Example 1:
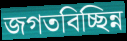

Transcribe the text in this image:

জগতবিচ্ছিন্ন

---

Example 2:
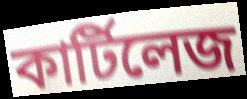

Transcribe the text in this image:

কার্টিলেজ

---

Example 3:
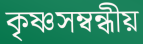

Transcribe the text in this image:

কৃষ্ণসম্বন্ধীয়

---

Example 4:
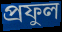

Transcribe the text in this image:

প্রফুল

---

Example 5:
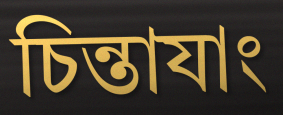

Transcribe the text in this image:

চিন্তাযাং